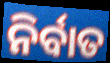
ନିର୍ବାତ